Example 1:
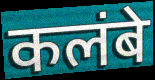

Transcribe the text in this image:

कलंबे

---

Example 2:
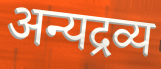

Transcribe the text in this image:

अन्यद्रव्य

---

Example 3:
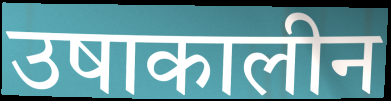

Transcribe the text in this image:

उषाकालीन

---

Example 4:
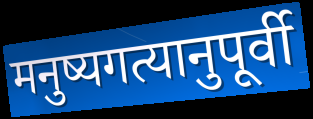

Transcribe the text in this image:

मनुष्यगत्यानुपूर्वी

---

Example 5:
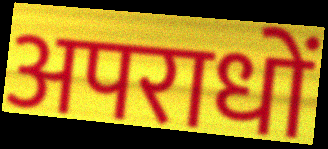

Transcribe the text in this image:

अपराधों